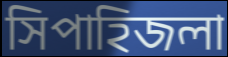
সিপাহিজলা